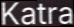
Katra